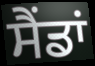
ਸੈਂਡਾਂ